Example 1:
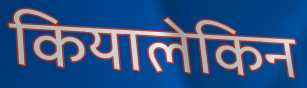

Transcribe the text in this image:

कियालेकिन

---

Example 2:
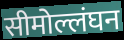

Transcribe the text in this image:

सीमोल्लंघन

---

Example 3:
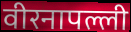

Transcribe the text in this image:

वीरनापल्ली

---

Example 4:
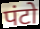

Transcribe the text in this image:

पंटो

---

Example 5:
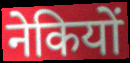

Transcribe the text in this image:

नेकियों